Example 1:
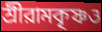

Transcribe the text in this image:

শ্রীরামকৃষ্ণও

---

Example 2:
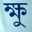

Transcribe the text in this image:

ক্ষু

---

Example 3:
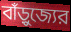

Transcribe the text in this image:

বাঁড়ুজ্যের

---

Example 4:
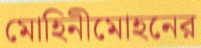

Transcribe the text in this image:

মোহিনীমোহনের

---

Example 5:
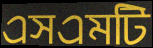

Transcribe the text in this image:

এসএমটি